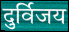
दुर्विजय